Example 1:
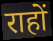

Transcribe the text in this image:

राहों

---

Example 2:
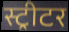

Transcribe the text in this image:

स्ट्रीटर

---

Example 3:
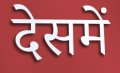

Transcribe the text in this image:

देसमें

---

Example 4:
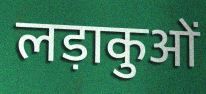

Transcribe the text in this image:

लड़ाकुओं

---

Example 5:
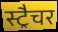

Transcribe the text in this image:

स्ट्रैचर